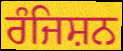
ਰੰਜਿਸ਼ਨ